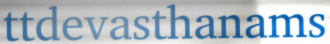
ttdevasthanams